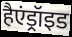
हैएंड्रॉइड